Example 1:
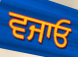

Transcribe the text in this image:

ਵਜਾਓ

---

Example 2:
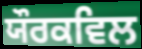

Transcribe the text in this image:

ਯੌਰਕਵਿਲ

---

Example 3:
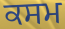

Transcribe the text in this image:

ਕਸਮ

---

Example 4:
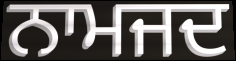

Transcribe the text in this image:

ਨਾਮਜਦ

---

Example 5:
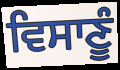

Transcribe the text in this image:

ਵਿਸਾਣੂੰ